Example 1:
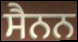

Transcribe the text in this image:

ਸੈਨਨ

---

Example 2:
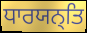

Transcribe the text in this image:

ਧਾਰਯਨ੍ਤਿ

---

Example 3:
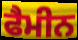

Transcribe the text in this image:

ਫੈਮੀਨ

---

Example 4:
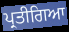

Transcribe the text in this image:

ਪ੍ਰਤੀਗਿਆ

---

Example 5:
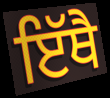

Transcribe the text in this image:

ਇੱਥੈ